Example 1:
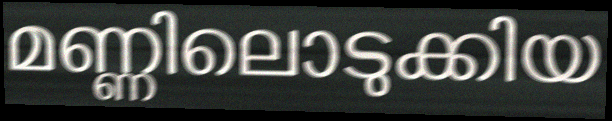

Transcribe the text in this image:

മണ്ണിലൊടുക്കിയ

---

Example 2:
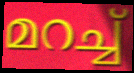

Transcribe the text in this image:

മറച്ച്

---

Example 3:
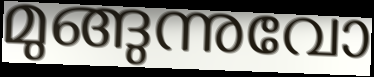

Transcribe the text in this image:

മുങ്ങുന്നുവോ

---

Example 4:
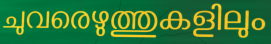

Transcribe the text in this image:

ചുവരെഴുത്തുകളിലും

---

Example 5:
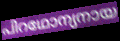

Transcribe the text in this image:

പിറഥോന്യനായ